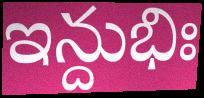
ఇన్దుభిః